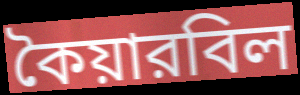
কৈয়ারবিল